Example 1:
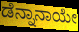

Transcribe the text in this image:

ಡೆನ್ನಾನಾಯೇ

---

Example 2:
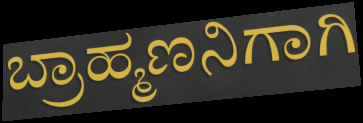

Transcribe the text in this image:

ಬ್ರಾಹ್ಮಣನಿಗಾಗಿ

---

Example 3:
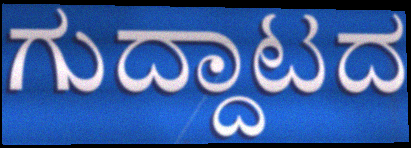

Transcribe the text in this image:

ಗುದ್ದಾಟದ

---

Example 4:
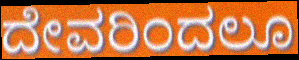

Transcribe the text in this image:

ದೇವರಿಂದಲೂ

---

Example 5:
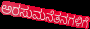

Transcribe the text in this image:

ಅರಸುಮನೆತನಗಳಿಗೆ